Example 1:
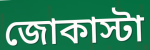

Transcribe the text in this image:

জোকাস্টা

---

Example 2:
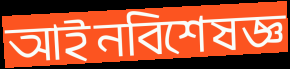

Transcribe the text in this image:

আইনবিশেষজ্ঞ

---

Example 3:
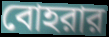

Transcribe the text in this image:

বোহরার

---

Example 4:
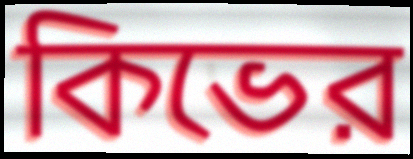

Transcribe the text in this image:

কিভের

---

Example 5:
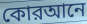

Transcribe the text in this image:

কোরআনে